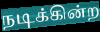
நடிக்கின்ற